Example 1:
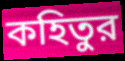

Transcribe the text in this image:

কহিতুর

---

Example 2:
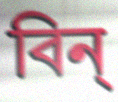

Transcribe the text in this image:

বিন্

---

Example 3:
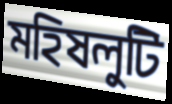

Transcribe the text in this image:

মহিষলুটি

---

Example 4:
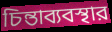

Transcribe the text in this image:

চিন্তাব্যবস্থার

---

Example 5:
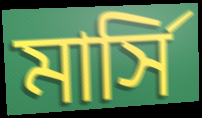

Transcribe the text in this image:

মার্সি